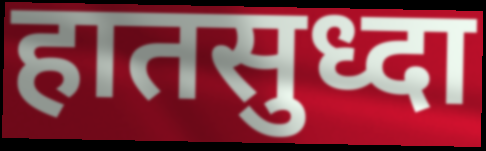
हातसुध्दा